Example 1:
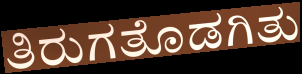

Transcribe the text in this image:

ತಿರುಗತೊಡಗಿತು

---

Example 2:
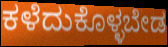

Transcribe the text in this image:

ಕಳೆದುಕೊಳ್ಳಬೇಡ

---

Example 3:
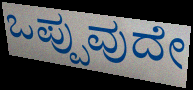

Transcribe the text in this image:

ಒಪ್ಪುವುದೇ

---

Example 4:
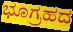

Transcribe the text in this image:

ಭೂಗ್ರಹದ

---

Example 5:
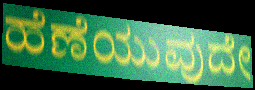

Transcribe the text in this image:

ಹೆಣೆಯುವುದೇ